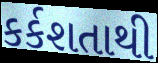
કર્કશતાથી